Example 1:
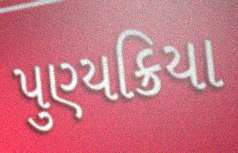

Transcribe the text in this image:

પુણ્યક્રિયા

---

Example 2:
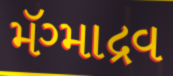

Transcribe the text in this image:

મૅગ્માદ્રવ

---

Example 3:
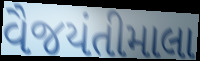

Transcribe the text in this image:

વૈજયંતીમાલા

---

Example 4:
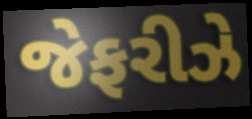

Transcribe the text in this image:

જેફરીઝે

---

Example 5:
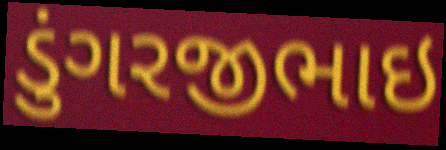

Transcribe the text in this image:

ડુંગરજીભાઇ